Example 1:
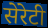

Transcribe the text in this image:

सेरेटी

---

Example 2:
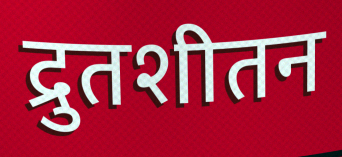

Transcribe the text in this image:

द्रुतशीतन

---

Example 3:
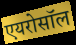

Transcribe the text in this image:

एयरोसॉल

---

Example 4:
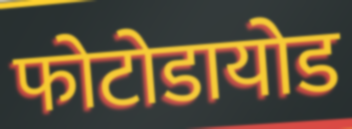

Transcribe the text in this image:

फोटोडायोड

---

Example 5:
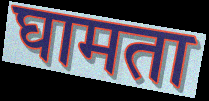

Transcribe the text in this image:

घामता